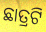
ଛାତ୍ରଟି